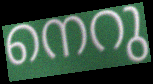
നെറു